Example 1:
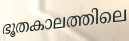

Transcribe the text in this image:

ഭൂതകാലത്തിലെ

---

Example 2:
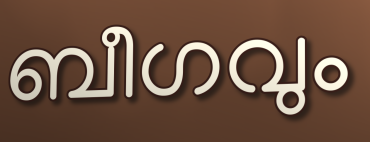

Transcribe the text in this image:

ബീഗവും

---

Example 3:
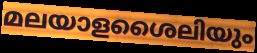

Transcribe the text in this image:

മലയാളശൈലിയും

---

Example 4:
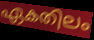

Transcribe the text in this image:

ഏകതിലം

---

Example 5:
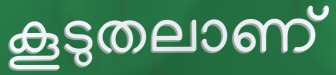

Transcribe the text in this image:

കൂടുതലാണ്